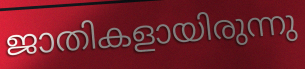
ജാതികളായിരുന്നു